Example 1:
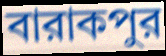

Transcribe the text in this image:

বারাকপুর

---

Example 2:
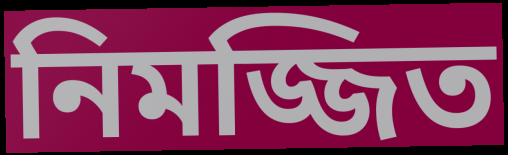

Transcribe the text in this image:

নিমজ্জিত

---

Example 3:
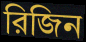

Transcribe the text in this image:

রিজিন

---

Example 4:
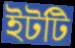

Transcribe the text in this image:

ইটটি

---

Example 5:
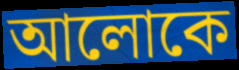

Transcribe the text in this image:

আলোকে